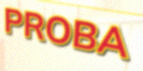
PROBA